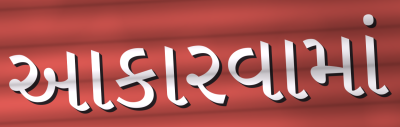
આકારવામાં